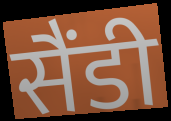
सैंडी